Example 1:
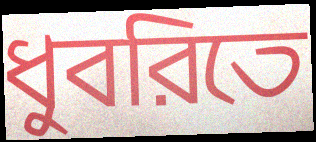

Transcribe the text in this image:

ধুবরিতে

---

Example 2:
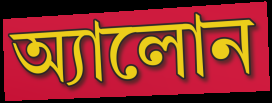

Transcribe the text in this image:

অ্যালোন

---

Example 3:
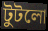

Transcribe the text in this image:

টুটলো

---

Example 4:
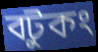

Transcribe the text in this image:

বটুকং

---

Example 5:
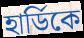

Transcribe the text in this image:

হার্ডিকে